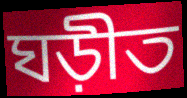
ঘড়ীত